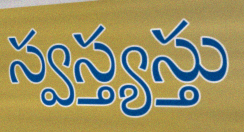
స్వస్త్యస్తు